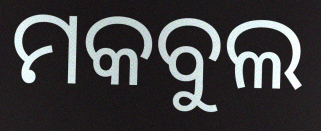
ମକବୁଲ